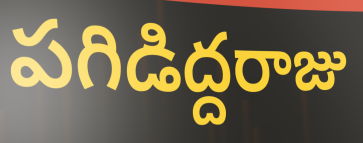
పగిడిద్దరాజు